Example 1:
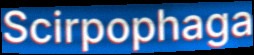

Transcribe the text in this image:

Scirpophaga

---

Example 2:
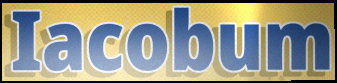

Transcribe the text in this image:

Iacobum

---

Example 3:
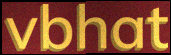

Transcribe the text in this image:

vbhat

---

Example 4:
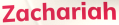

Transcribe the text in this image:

Zachariah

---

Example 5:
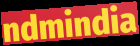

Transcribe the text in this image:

ndmindia